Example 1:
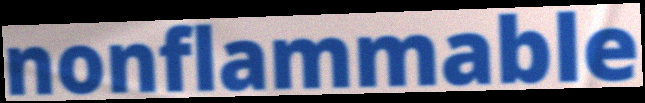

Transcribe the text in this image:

nonflammable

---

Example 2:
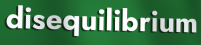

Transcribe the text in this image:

disequilibrium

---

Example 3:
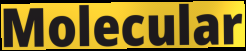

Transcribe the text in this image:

Molecular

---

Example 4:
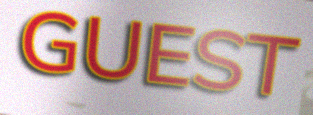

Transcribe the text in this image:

GUEST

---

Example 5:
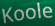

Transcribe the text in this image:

Koole